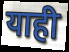
याही